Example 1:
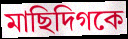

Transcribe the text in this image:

মাছিদিগকে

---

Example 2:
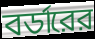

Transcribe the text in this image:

বর্ডারের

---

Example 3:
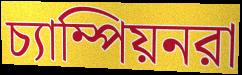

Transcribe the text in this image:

চ্যাম্পিয়নরা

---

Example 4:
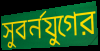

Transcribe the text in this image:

সুবর্নযুগের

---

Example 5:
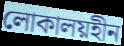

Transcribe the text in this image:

লোকালয়হীন